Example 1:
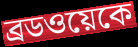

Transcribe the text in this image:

ব্রডওয়েকে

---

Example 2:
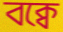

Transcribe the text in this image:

বক্বে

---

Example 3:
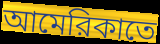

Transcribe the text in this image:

আমেরিকাতে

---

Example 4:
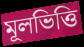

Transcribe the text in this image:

মূলভিত্তি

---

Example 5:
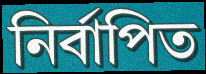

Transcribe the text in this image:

নির্বাপিত